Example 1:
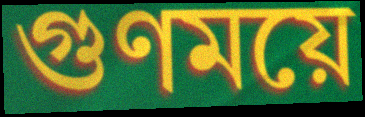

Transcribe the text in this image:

গুণময়ে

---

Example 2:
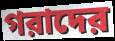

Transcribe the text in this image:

গরাদের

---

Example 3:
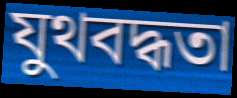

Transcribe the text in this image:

যুথবদ্ধতা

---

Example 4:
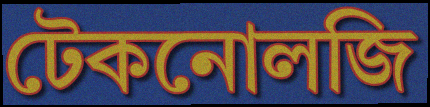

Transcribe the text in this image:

টেকনোলজি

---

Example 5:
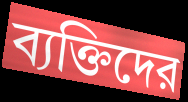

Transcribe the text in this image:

ব্যক্তিদের